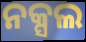
ନକ୍ସଲ